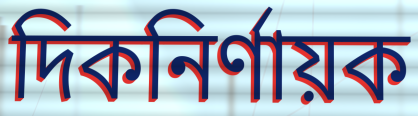
দিকনির্ণায়ক